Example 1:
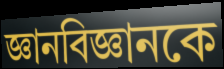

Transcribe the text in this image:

জ্ঞানবিজ্ঞানকে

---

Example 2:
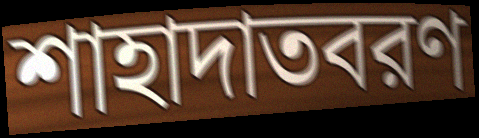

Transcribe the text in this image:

শাহাদাতবরণ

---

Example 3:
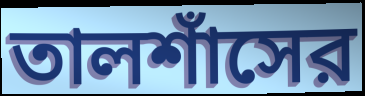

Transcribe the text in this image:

তালশাঁসের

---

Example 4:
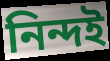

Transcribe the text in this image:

নিন্দই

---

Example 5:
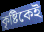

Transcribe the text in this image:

কৃষ্টিকেই